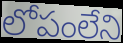
లోపంలేని